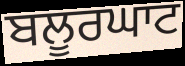
ਬਲੂਰਘਾਟ